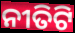
ନୀତିଟି